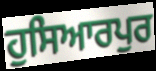
ਹੁਸਿਆਰਪੁਰ